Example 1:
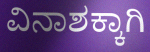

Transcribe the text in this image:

ವಿನಾಶಕ್ಕಾಗಿ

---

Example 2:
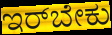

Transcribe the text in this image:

ಇರ್‌ಬೇಕು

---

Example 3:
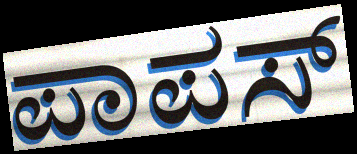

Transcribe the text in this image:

ಪಾಪಸ್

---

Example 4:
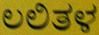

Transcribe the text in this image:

ಲಲಿತಳ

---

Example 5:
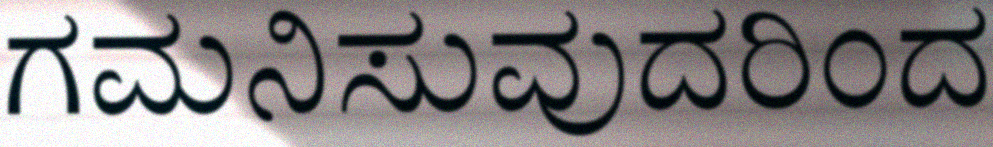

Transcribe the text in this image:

ಗಮನಿಸುವುದರಿಂದ